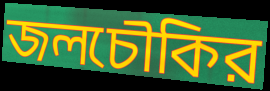
জলচৌকির